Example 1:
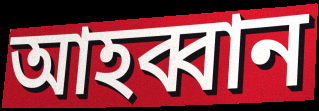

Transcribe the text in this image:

আহব্বান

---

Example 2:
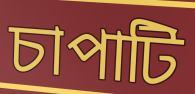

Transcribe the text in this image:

চাপাটি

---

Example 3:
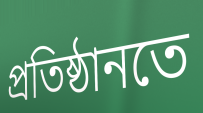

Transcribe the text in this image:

প্ৰতিষ্ঠানতে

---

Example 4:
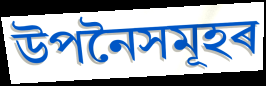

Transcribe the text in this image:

উপনৈসমূহৰ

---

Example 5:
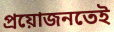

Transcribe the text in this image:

প্ৰয়োজনতেই